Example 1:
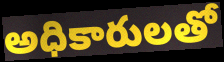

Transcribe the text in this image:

అధికారులతో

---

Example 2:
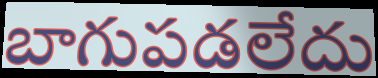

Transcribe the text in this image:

బాగుపడలేదు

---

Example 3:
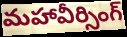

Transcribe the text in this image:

మహావీర్సింగ్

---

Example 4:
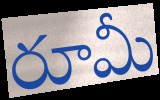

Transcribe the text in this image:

రూమీ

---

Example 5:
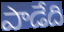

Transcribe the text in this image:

పాడేది